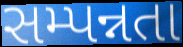
સમ્પન્નતા